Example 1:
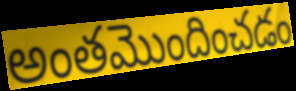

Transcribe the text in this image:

అంతమొందించడం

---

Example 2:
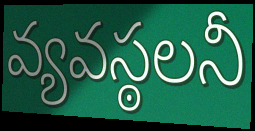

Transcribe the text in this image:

వ్యవస్ఠలనీ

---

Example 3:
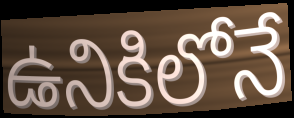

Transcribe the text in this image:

ఉనికిలోనే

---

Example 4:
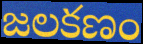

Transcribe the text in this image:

జలకణం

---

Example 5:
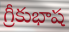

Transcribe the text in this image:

గ్రీకుభాష